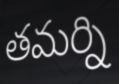
తమర్ని